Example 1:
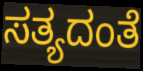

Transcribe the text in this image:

ಸತ್ಯದಂತೆ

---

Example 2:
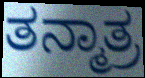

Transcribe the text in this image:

ತನ್ಮಾತ್ರ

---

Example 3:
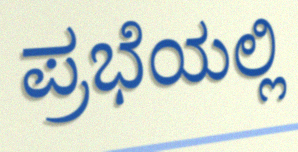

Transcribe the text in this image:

ಪ್ರಭೆಯಲ್ಲಿ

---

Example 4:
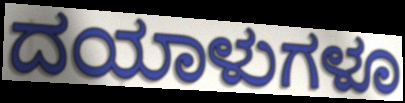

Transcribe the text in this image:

ದಯಾಳುಗಳೂ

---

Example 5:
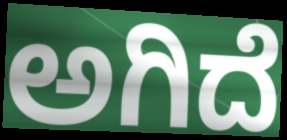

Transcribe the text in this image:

ಅಗಿದೆ